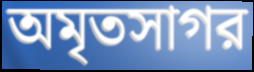
অমৃতসাগর